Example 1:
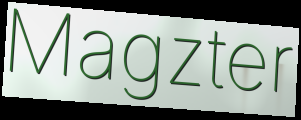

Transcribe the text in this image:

Magzter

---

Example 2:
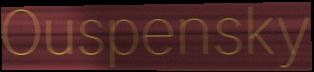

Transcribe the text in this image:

Ouspensky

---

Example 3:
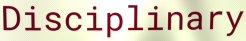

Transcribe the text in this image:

Disciplinary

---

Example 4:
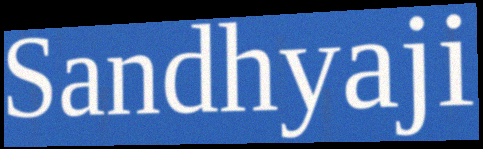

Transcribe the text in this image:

Sandhyaji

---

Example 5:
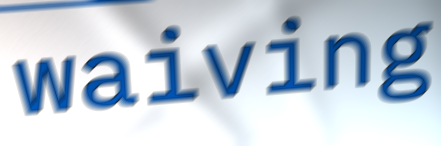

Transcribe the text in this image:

waiving